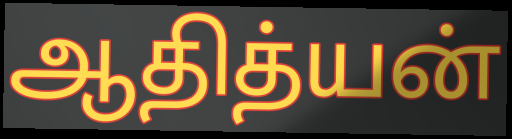
ஆதித்யன்